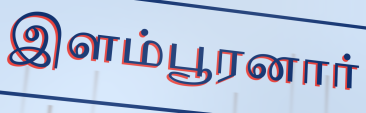
இளம்பூரனார்